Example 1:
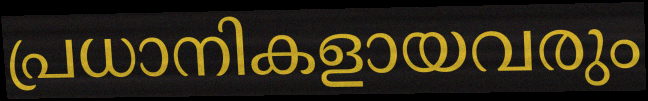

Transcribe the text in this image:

പ്രധാനികളായവരും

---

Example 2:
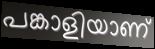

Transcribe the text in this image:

പങ്കാളിയാണ്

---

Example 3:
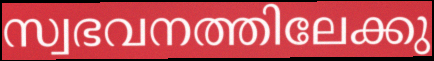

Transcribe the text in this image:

സ്വഭവനത്തിലേക്കു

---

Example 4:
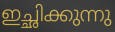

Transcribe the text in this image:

ഇച്ഛിക്കുന്നു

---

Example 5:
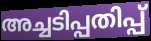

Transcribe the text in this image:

അച്ചടിപ്പതിപ്പ്